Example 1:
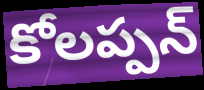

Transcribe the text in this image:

కోలప్పన్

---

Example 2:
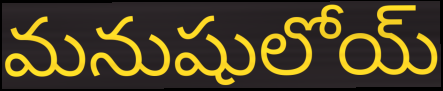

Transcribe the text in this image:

మనుషులోయ్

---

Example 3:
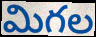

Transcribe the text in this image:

మిగల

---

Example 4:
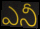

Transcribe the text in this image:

ఎనీ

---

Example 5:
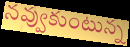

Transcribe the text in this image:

నవ్వుకుంటున్న